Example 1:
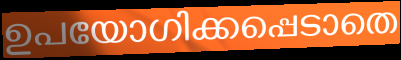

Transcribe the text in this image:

ഉപയോഗിക്കപ്പെടാതെ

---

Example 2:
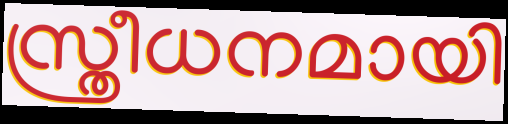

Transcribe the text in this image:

സ്ത്രീധനമായി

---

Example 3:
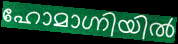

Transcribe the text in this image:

ഹോമാഗ്നിയിൽ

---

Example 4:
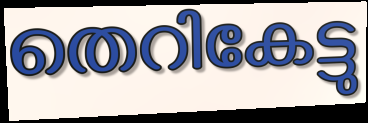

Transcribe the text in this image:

തെറികേട്ടു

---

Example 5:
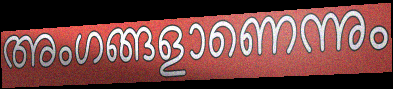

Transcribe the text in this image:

അംഗങ്ങളാണെന്നും